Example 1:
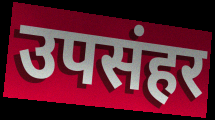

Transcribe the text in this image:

उपसंहर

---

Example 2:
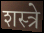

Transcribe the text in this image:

शस्त्रे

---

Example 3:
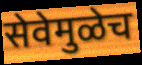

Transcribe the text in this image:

सेवेमुळेच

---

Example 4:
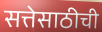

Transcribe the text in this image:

सत्तेसाठीची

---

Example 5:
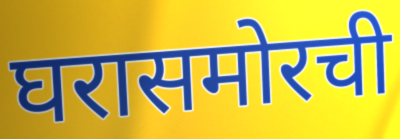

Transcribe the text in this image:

घरासमोरची